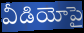
వీడియోపై